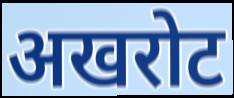
अखरोट